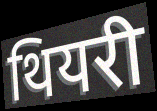
थियरी